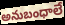
అనుబంధాలే